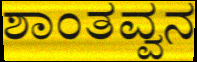
ಶಾಂತವ್ವನ